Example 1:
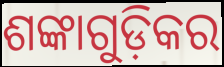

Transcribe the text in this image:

ଶଙ୍କାଗୁଡ଼ିକର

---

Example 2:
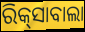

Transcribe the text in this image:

ରିକ୍‍ସାବାଲା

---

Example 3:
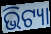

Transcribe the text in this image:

ଭିଟ୍ୟା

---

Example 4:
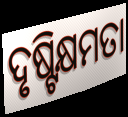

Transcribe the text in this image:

ଦୃଷ୍ଟିକ୍ଷମତା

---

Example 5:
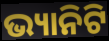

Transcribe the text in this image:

ଭ୍ୟାନିଟି